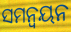
ସମନ୍ୱୟନ